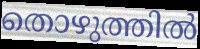
തൊഴുത്തിൽ